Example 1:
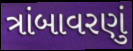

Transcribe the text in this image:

ત્રાંબાવરણું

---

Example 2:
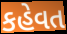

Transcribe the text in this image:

કહેવત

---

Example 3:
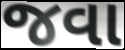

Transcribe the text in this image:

જવા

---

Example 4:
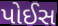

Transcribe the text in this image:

પોઈસ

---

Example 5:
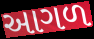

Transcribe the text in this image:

આગળ